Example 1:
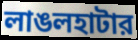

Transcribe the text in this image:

লাঙলহাটার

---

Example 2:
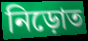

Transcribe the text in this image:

নিড়োত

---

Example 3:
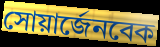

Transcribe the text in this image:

সোয়ার্জেনবেক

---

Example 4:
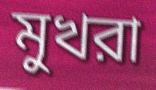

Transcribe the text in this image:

মুখরা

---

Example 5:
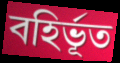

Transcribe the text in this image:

বহির্ভূত